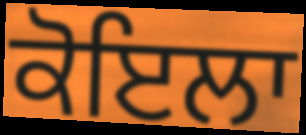
ਕੋਇਲਾ